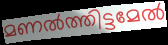
മണൽത്തിട്ടമേൽ